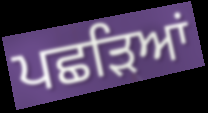
ਪਛੜਿਆਂ